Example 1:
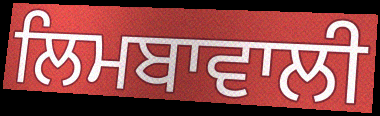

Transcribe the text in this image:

ਲਿਮਬਾਵਾਲੀ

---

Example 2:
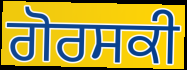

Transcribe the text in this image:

ਗੋਰਸਕੀ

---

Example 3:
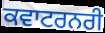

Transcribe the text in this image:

ਕਵਾਟਰਨਰੀ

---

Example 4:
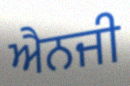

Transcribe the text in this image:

ਐਨਜੀ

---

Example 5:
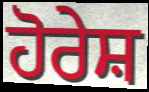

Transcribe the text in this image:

ਹੋਰੇਸ਼